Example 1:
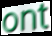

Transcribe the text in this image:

ont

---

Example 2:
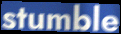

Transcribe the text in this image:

stumble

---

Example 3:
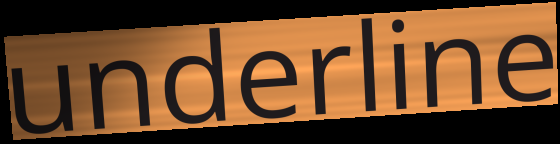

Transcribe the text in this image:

underline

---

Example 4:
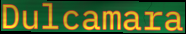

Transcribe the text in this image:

Dulcamara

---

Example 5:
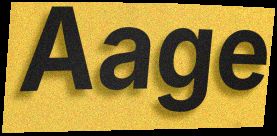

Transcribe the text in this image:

Aage